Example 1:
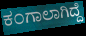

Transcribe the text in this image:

ಕಂಗಾಲಾಗಿದ್ದೆ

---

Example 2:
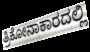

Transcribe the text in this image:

ತ್ರಿಕೋನಾಕಾರದಲ್ಲಿ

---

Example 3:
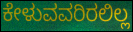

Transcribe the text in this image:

ಕೇಳುವವರಿರಲಿಲ್ಲ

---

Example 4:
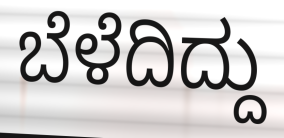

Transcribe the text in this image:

ಬೆಳೆದಿದ್ದು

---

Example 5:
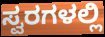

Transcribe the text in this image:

ಸ್ವರಗಳಲ್ಲಿ